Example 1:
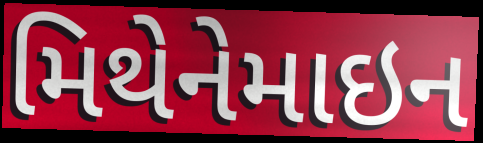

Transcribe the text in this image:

મિથેનેમાઇન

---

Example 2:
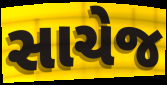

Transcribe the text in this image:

સાચેજ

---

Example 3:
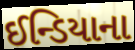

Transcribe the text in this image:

ઈન્ડિયાના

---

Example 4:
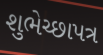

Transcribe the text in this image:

શુભેચ્છાપત્ર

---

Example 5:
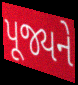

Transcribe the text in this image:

પૂજ્યને